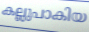
കല്ലുപാകിയ